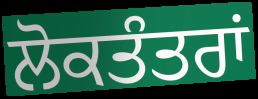
ਲੋਕਤੰਤਰਾਂ